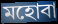
মহোবা